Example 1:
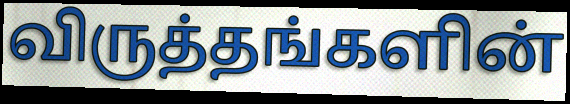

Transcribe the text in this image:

விருத்தங்களின்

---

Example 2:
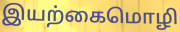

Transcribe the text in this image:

இயற்கைமொழி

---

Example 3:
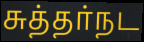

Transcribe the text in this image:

சுத்தர்நட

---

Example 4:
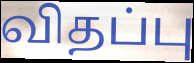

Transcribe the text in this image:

விதப்பு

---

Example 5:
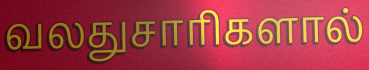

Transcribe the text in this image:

வலதுசாரிகளால்